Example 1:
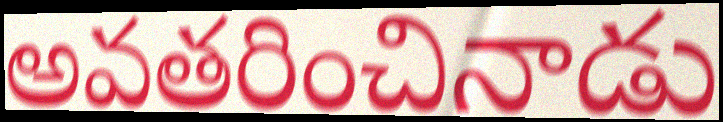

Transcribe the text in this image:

అవతరించినాడు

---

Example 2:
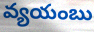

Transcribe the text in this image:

వ్యయంబు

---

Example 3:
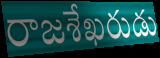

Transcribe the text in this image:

రాజశేఖరుడు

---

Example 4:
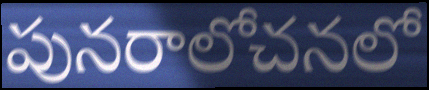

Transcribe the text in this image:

పునరాలోచనలో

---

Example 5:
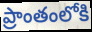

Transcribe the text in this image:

ప్రాంతంలోకి